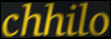
chhilo